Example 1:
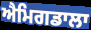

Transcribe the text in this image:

ਐਮਿਗਡਾਲਾ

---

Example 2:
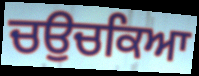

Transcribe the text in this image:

ਚਉਚਕਿਆ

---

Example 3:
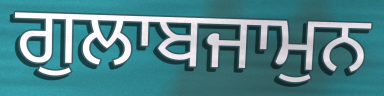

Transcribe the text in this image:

ਗੁਲਾਬਜਾਮੁਨ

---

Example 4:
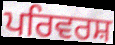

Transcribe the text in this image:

ਪਰਿਵਰਸ਼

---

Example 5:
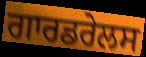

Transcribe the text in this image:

ਗਾਰਡਰੇਲਸ